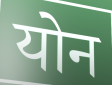
योन